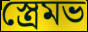
স্ত্রেমভ